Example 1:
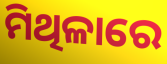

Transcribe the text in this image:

ମିଥିଳାରେ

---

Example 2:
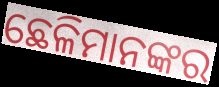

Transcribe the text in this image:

ଛେଳିମାନଙ୍କର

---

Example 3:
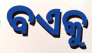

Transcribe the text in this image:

ବଏକୁ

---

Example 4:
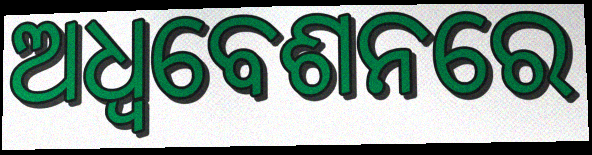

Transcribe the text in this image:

ଅଧ୍ଵବେଶନରେ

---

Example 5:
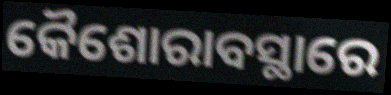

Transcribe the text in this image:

କୈଶୋରାବସ୍ଥାରେ